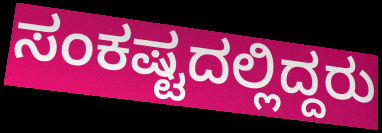
ಸಂಕಷ್ಟದಲ್ಲಿದ್ದರು